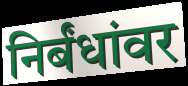
निर्बंधांवर